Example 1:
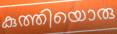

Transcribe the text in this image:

കുത്തിയൊരു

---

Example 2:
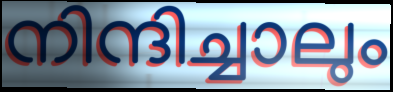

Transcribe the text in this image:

നിന്ദിച്ചാലും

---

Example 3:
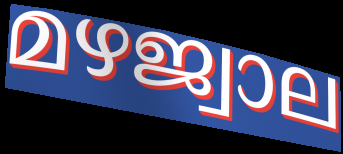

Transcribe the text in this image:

മഴജ്വാല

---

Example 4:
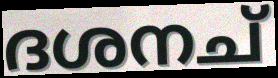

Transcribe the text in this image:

ദശനച്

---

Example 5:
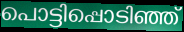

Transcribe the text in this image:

പൊട്ടിപ്പൊടിഞ്ഞ്